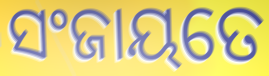
ସଂଜାୟତେ